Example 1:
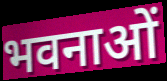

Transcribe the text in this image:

भवनाओं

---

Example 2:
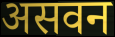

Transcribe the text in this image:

असवन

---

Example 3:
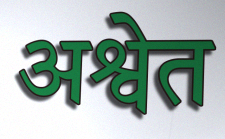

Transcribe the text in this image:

अश्वेत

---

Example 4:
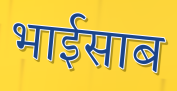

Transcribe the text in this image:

भाईसाब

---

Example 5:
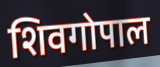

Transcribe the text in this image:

शिवगोपाल